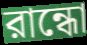
রান্ধো